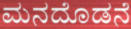
ಮನದೊಡನೆ